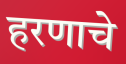
हरणाचे